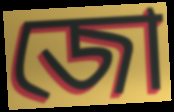
জো